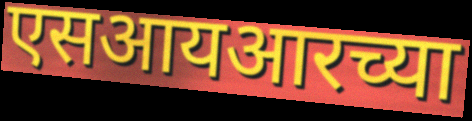
एसआयआरच्या